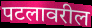
पटलावरील